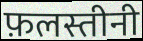
फ़लस्तीनी